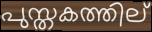
പുസ്തകത്തില്